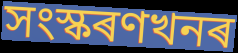
সংস্কৰণখনৰ